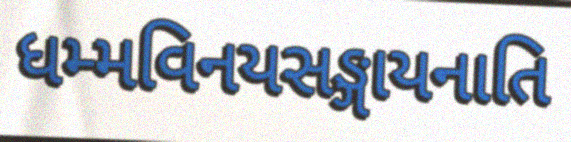
ધમ્મવિનયસઙ્ગાયનાતિ